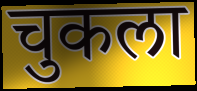
चुकला